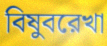
বিষুবরেখা